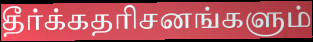
தீர்க்கதரிசனங்களும்